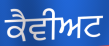
ਕੈਵੀਅਟ